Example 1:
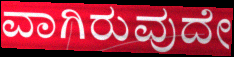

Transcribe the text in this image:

ವಾಗಿರುವುದೇ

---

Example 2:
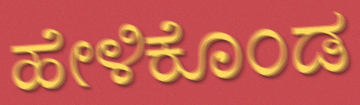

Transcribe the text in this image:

ಹೇಳಿಕೊಂಡ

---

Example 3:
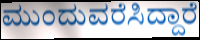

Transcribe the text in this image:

ಮುಂದುವರೆಸಿದ್ದಾರೆ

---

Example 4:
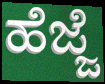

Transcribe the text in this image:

ಹೆಜ್ಜೆ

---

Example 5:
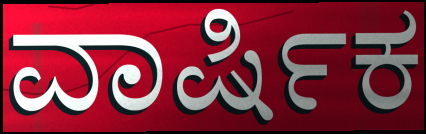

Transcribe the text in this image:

ವಾರ್ಷಿಕ